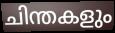
ചിന്തകളും